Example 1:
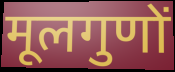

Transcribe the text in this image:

मूलगुणों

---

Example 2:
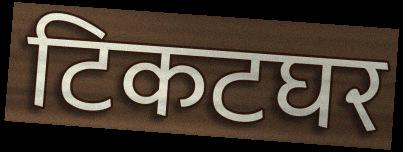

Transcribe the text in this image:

टिकटघर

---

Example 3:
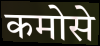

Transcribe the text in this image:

कमोसे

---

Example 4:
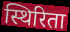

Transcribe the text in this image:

स्थिरिता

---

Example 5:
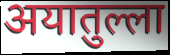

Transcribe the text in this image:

अयातुल्‍ला